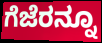
ಗೆಜೆರನ್ನೂ